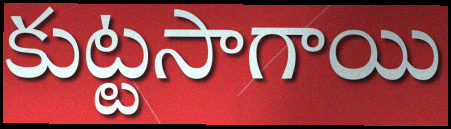
కుట్టసాగాయి